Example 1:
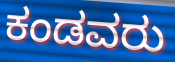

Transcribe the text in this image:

ಕಂಡವರು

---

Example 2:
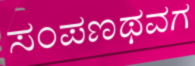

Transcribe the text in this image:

ಸಂಪಣಥವಗ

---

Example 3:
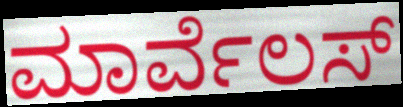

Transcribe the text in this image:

ಮಾರ್ವೆಲಸ್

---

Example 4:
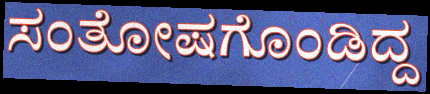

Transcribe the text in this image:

ಸಂತೋಷಗೊಂಡಿದ್ದ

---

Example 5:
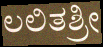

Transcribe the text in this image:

ಲಲಿತಶ್ರೀ